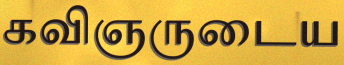
கவிஞருடைய